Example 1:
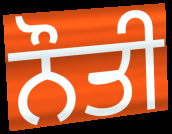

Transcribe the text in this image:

ਨੌਤੀ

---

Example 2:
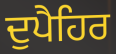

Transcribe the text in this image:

ਦੁਪੈਹਿਰ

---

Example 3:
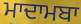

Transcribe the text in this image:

ਮਾਦਾਮਬਾ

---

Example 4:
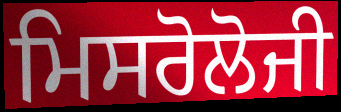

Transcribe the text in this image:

ਮਿਸਰੋਲੋਜੀ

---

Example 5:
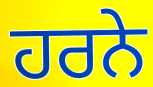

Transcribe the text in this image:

ਹਰਨੇ